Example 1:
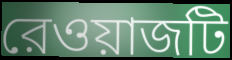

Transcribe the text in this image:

রেওয়াজটি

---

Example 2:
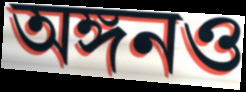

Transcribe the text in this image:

অঙ্গনও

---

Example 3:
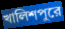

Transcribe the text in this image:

খালিশপুরে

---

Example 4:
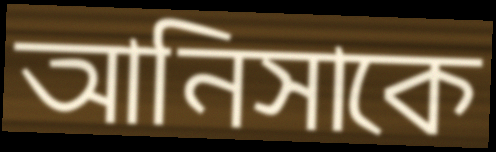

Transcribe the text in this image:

আনিসাকে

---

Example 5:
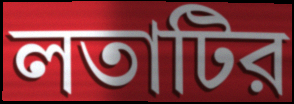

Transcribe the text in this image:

লতাটির